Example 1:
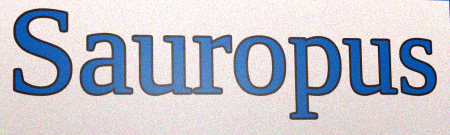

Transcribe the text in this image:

Sauropus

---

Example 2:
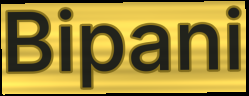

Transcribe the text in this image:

Bipani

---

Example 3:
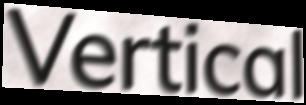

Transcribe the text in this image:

Vertical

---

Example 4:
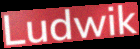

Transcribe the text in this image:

Ludwik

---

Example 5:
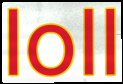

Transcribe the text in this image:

loll